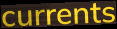
currents